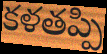
కళతప్పి